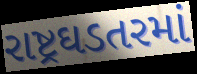
રાષ્ટ્રઘડતરમાં